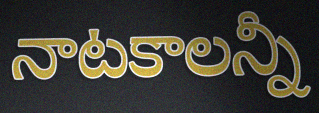
నాటకాలన్నీ